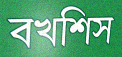
বখশিস